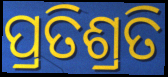
ପ୍ରତିଶ୍ରତି